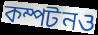
কম্পটনও